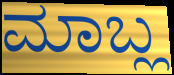
ಮಾಬ್ಲ